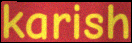
karish